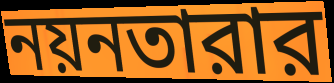
নয়নতারার